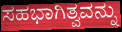
ಸಹಭಾಗಿತ್ವವನ್ನು